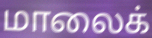
மாலைக்